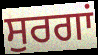
ਸੁਰਗਾਂ